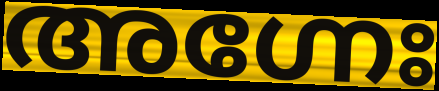
അഗ്നേഃ